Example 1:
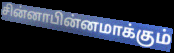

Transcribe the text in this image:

சின்னாபின்னமாக்கும்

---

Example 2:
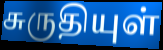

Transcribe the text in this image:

சுருதியுள்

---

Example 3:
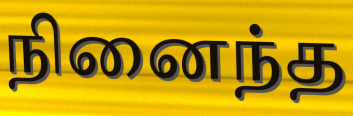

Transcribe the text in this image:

நினைந்த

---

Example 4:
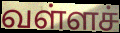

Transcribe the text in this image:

வள்ளச்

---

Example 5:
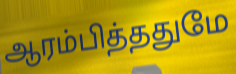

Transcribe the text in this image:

ஆரம்பித்ததுமே